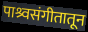
पाश्र्वसंगीतातून